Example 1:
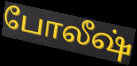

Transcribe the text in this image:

போலீஷ்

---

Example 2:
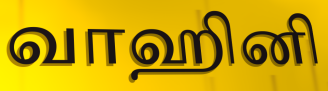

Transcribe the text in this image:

வாஹினி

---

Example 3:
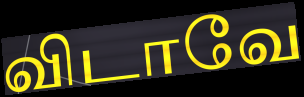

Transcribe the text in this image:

விடாவே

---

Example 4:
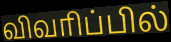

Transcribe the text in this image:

விவரிப்பில்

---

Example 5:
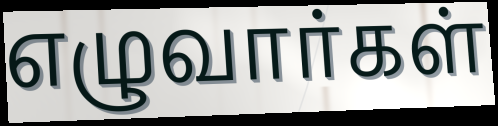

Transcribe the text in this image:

எழுவார்கள்